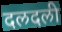
दलदली